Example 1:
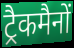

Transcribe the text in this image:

ट्रैकमैनों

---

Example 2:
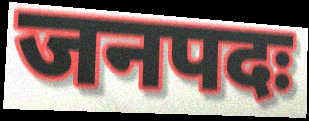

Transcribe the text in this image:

जनपदः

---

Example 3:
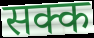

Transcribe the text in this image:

सक्क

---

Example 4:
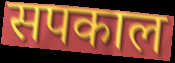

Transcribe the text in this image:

सपकाल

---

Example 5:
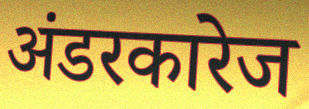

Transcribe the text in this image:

अंडरकारेज